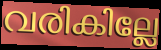
വരികില്ലേ